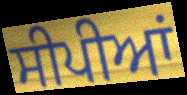
ਸੀਪੀਆਂ